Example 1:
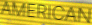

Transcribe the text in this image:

AMERICAN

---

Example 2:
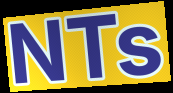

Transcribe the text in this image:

NTs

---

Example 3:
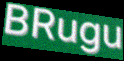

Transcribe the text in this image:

BRugu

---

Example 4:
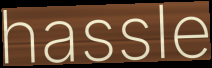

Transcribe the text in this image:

hassle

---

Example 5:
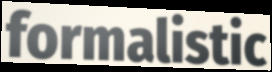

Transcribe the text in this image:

formalistic